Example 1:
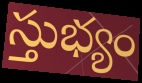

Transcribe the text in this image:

స్తుభ్యం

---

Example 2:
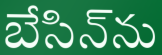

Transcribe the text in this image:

బేసిన్‌ను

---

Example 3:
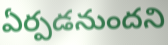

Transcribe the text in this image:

ఏర్పడనుందని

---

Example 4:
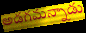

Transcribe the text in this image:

అడగమన్నాడు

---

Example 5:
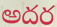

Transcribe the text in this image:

అదర